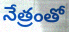
నేత్రంతో